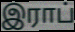
இராப்